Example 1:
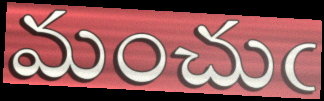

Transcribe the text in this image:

మంచుఁ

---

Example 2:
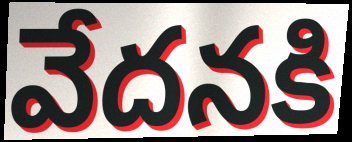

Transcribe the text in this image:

వేదనకి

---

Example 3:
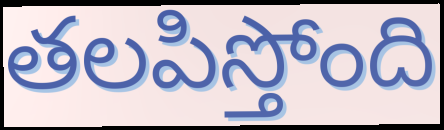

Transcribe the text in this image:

తలపిస్తోంది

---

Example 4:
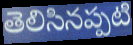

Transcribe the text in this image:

తెలిసినప్పటి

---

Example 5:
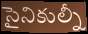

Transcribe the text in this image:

సైనికుల్నీ